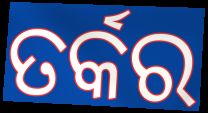
ତର୍କର